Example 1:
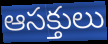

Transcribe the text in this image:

ఆసక్తులు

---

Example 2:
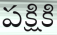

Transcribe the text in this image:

పక్షికి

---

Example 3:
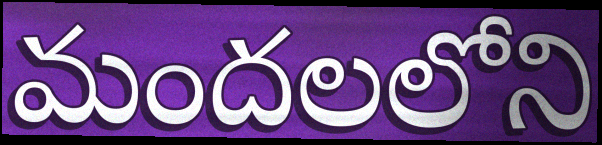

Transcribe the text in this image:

మందలలోని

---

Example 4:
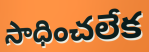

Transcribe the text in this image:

సాధించలేక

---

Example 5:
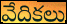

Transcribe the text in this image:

వేదికలు